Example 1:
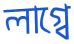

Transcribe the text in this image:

লাগ্বে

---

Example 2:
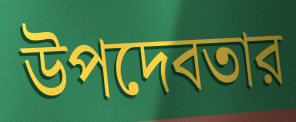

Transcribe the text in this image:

উপদেবতার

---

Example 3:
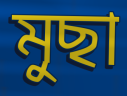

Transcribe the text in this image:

মুছা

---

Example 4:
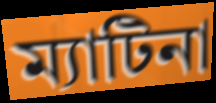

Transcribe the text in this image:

ম্যাটিনা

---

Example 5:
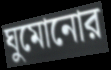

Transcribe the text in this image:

ঘুমোনোর